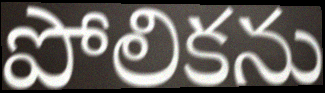
పోలికను